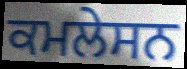
ਕਮਲੇਸਨ